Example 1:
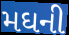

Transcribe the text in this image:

મઘની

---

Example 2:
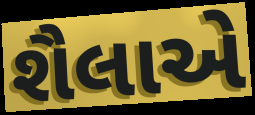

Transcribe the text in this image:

શૈલાએ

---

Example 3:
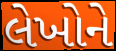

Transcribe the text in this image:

લેખોને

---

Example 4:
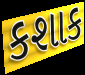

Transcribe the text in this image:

કશાક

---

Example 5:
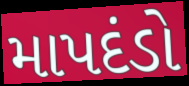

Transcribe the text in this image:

માપદંડો